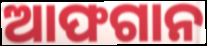
ଆଫଗାନ